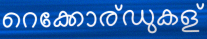
റെക്കോര്ഡുകള്